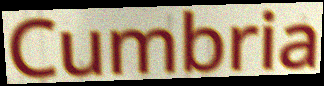
Cumbria